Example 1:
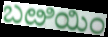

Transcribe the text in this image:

ಬೞಿಯಿಂ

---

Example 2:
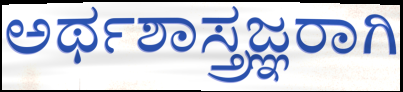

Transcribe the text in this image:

ಅರ್ಥಶಾಸ್ತ್ರಜ್ಞರಾಗಿ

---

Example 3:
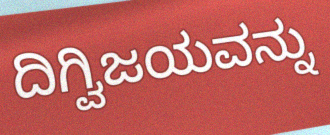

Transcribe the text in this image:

ದಿಗ್ವಿಜಯವನ್ನು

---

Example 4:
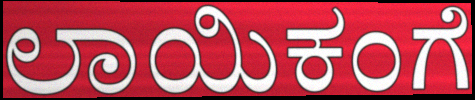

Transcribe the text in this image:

ಲಾಯಿಕಂಗೆ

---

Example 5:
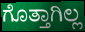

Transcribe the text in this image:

ಗೊತ್ತಾಗಿಲ್ಲ